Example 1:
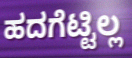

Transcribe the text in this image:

ಹದಗೆಟ್ಟಿಲ್ಲ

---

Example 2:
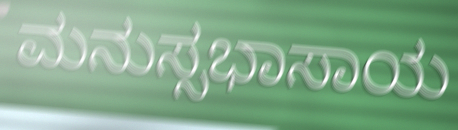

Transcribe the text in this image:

ಮನುಸ್ಸಭಾಸಾಯ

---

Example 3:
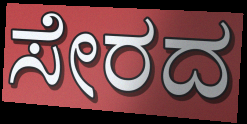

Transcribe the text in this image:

ಸೇರದ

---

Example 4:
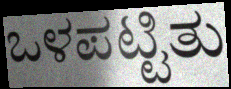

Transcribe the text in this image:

ಒಳಪಟ್ಟಿತು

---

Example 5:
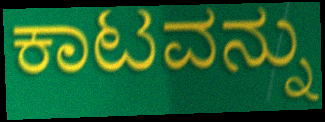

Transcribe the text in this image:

ಕಾಟವನ್ನು